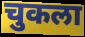
चुकला